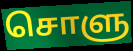
சொளு